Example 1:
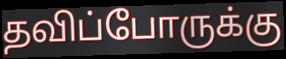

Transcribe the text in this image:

தவிப்போருக்கு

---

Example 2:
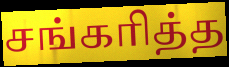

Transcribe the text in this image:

சங்கரித்த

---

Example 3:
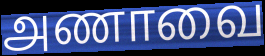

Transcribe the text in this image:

அணாவை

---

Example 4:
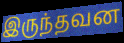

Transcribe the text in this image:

இருந்தவன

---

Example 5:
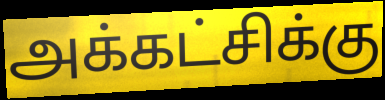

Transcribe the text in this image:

அக்கட்சிக்கு